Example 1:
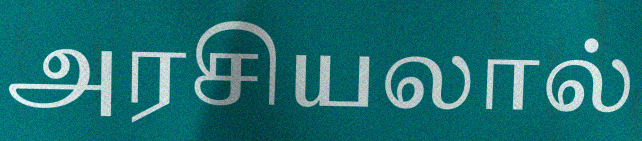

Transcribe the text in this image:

அரசியலால்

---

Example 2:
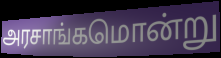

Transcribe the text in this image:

அரசாங்கமொன்று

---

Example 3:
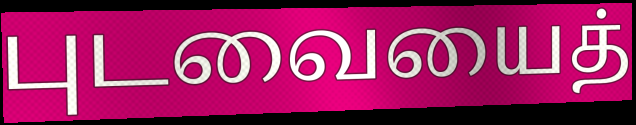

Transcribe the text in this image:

புடவையைத்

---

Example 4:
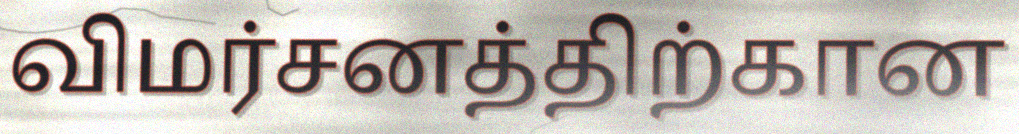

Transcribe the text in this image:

விமர்சனத்திற்கான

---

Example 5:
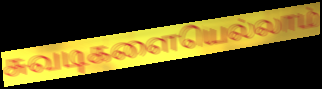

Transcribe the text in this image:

சுவடிகளையெல்லாம்